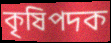
কৃষিপদক